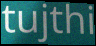
tujthi